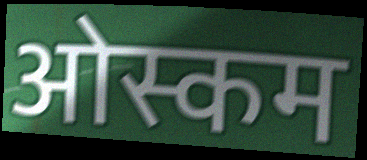
ओस्कम